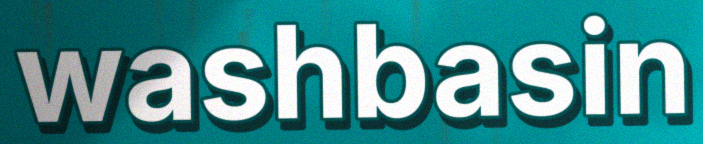
washbasin